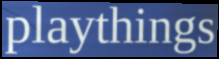
playthings